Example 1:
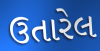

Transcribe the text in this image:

ઉતારેલ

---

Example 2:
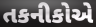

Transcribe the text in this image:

તકનીકોએ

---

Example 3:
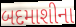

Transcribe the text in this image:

બદમાશીના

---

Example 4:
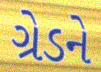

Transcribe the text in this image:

ગ્રેડને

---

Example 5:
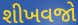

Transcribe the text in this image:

શીખવજો